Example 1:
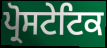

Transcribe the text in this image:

ਪ੍ਰੋਸਟੇਟਿਕ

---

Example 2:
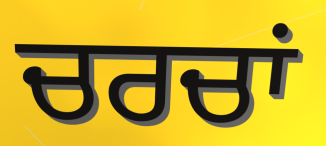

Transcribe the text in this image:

ਚਰਚਾਂ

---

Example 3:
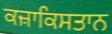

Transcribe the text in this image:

ਕਜ਼ਾਕਿਸਤਾਨ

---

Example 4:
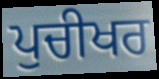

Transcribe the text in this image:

ਪੁਚੀਖਰ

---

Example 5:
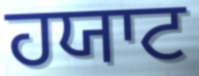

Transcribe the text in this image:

ਹਯਾਟ